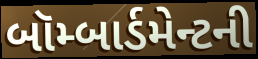
બૉમ્બાર્ડમેન્ટની